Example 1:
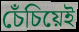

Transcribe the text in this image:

চেঁচিয়েই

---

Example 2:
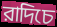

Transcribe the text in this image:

রাদিচে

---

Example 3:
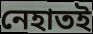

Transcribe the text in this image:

নেহাতই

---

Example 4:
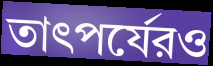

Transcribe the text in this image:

তাৎপর্যেরও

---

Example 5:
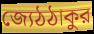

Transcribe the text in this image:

জ্যেঠঠাকুর